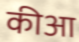
कीआ